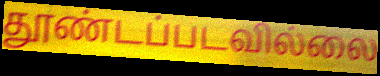
தூண்டப்படவில்லை